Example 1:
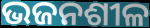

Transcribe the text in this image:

ଭଜନଶୀଳ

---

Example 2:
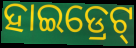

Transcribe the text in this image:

ହାଇଡ୍ରେଟ୍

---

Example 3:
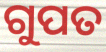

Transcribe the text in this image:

ଗୁପତ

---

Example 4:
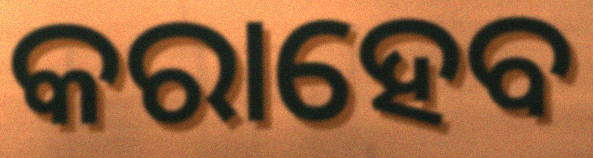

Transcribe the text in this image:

କରାହେବ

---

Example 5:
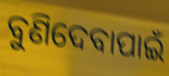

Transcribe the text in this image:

ବୁଣିଦେବାପାଇଁ